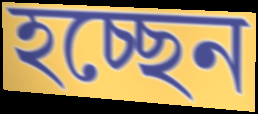
হচ্ছেন